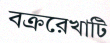
বক্ররেখাটি